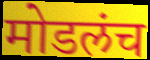
मोडलंच